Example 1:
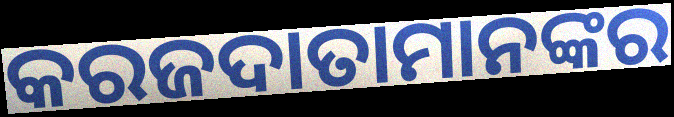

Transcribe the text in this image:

କରଜଦାତାମାନଙ୍କର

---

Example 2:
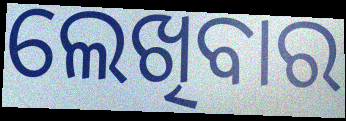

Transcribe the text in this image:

ଲେଖିବାର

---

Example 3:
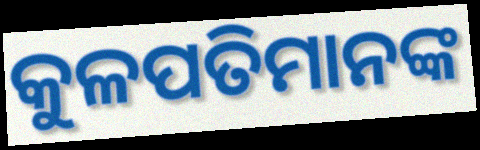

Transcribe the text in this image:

କୁଳପତିମାନଙ୍କ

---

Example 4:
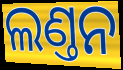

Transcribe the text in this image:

ଲଣ୍ତନ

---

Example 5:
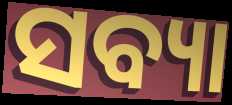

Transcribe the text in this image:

ସବ୍ୟା